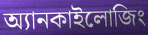
অ্যানকাইলোজিং